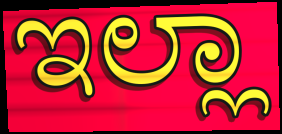
ಇಲ್ಲಾ